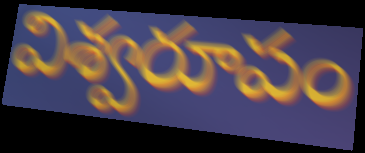
విశ్వరూపం